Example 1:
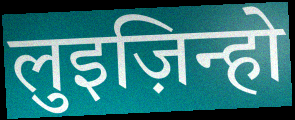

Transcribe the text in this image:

लुइज़िन्हो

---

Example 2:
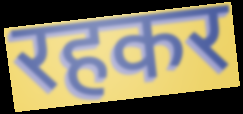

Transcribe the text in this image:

रहकर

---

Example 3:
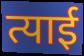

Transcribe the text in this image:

त्याई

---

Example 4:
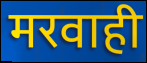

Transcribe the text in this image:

मरवाही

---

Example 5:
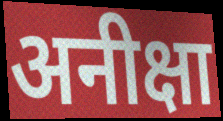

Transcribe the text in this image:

अनीक्षा